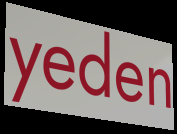
yeden